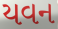
યવન